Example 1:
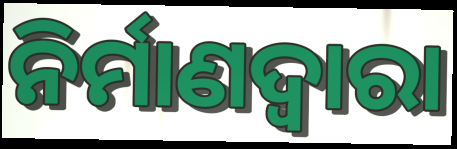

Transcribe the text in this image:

ନିର୍ମାଣଦ୍ୱାରା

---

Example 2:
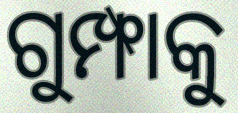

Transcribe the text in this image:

ଗୁମ୍ଫାକୁ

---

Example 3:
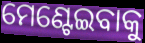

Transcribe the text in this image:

ମେଣ୍ଟେଇବାକୁ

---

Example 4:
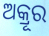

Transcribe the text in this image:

ଅକ୍ରୂର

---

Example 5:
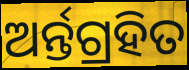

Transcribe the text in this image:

ଅର୍ନ୍ତଗ୍ରହିତ